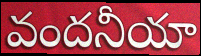
వందనీయా